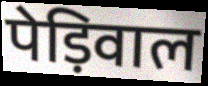
पेड़िवाल